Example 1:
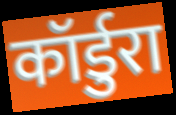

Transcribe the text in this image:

कॉर्डुरा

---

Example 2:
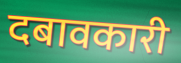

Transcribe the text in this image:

दबावकारी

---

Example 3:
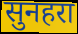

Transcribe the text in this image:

सुनहरा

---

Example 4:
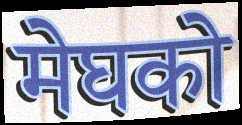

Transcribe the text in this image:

मेघको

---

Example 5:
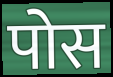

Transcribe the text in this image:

पोस